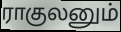
ராகுலனும்